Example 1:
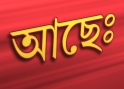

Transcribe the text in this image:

আছেঃ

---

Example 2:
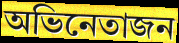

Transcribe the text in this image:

অভিনেতাজন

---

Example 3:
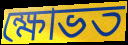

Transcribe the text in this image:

ক্ষোভত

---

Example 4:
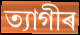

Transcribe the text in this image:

ত্যাগীৰ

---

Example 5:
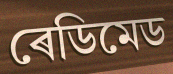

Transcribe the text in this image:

ৰেডিমেড